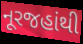
નૂરજહાંથી